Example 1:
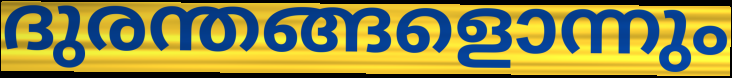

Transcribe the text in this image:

ദുരന്തങ്ങളൊന്നും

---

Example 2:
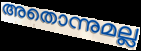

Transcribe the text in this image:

അതൊന്നുമല്ല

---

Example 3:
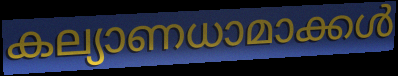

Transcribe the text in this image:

കല്യാണധാമാക്കൾ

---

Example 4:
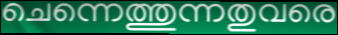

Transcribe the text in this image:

ചെന്നെത്തുന്നതുവരെ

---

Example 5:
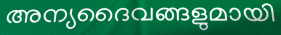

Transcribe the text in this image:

അന്യദൈവങ്ങളുമായി